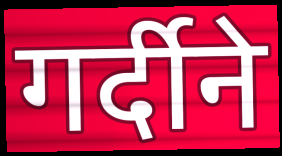
गर्दीने